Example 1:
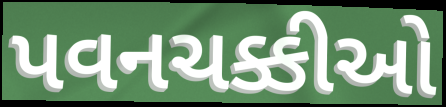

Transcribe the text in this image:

પવનચક્કીઓ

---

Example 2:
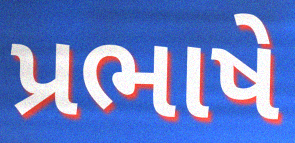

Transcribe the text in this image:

પ્રભાષે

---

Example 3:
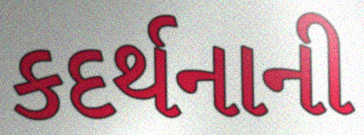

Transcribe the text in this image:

કદર્થનાની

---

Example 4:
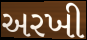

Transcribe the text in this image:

અરખી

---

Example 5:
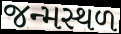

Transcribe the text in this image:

જન્મસ્થળ